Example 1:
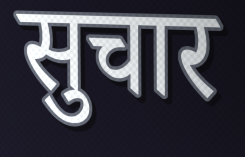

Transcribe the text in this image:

सुचार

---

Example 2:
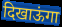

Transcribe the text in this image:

दिखाऊंगा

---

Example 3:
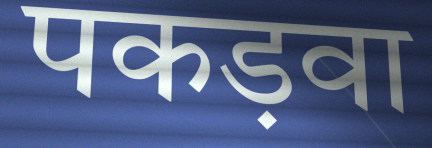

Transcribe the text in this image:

पकड़वा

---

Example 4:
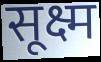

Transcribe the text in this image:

सूक्ष्‍म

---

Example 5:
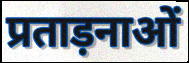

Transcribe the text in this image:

प्रताड़नाओं